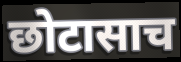
छोटासाच